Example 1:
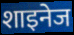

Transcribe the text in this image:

शाइनेज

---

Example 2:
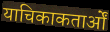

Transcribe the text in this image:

याचिकाकतार्ओं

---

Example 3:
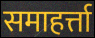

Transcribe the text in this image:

समाहर्त्ता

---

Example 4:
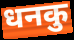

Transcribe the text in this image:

धनकु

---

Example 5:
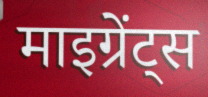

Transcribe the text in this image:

माइग्रेंट्स